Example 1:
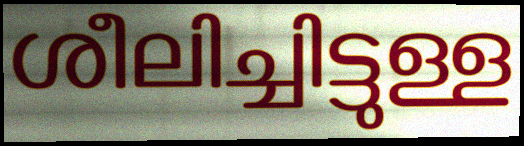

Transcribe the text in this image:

ശീലിച്ചിട്ടുള്ള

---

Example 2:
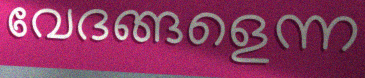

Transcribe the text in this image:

വേദങ്ങളെന്ന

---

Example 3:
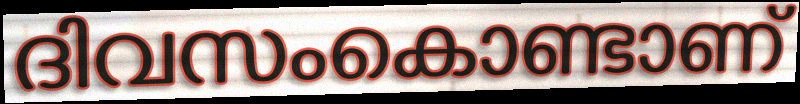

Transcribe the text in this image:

ദിവസംകൊണ്ടാണ്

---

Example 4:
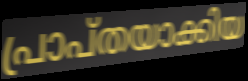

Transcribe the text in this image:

പ്രാപ്തയാക്കിയ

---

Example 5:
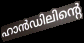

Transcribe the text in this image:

ഹാൻഡിലിന്റെ